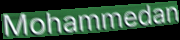
Mohammedan